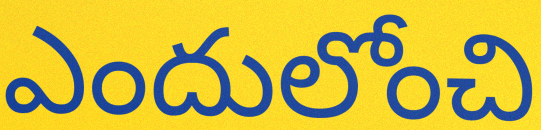
ఎందులోంచి